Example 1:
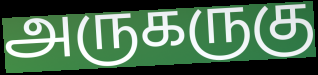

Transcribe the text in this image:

அருகருகு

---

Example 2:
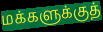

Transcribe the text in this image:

மக்களுக்குத்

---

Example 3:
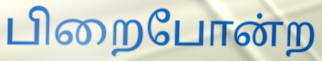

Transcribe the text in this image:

பிறைபோன்ற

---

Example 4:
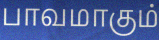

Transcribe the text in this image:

பாவமாகும்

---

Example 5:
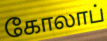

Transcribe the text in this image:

கோலாப்